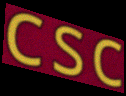
csc